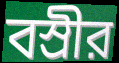
বস্রীর